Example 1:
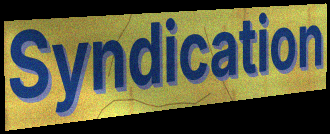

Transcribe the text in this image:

Syndication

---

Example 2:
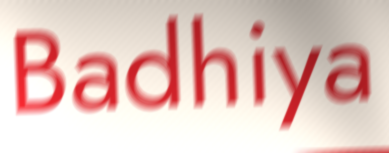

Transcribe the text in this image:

Badhiya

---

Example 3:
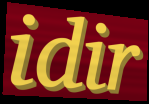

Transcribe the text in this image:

idir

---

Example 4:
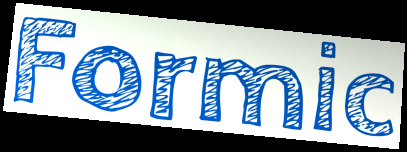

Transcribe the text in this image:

Formic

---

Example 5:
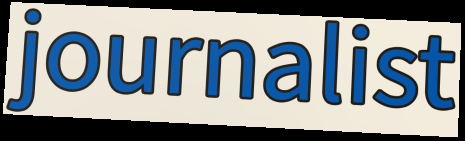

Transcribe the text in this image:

journalist